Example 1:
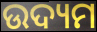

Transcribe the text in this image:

ଉଦ୍ୟମ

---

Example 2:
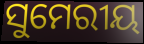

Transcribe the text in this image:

ସୁମେରୀୟ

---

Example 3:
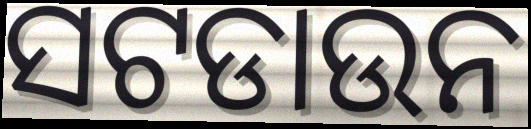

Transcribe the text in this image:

ସଟଡାଉନ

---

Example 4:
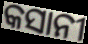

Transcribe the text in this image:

କସାନୀ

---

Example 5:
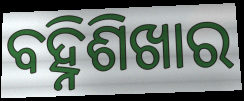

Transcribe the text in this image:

ବହ୍ନିଶିଖାର